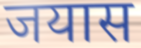
जयास